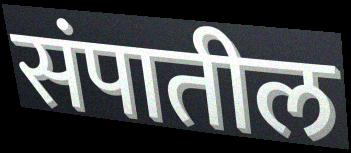
संपातील